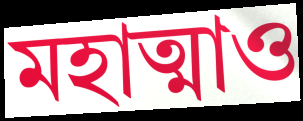
মহাত্মাও